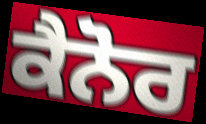
ਕੈਨੋਰ